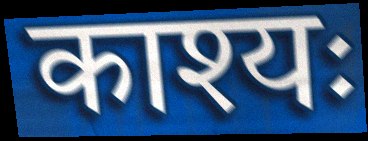
काश्यः